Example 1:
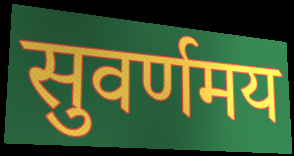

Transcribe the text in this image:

सुवर्णमय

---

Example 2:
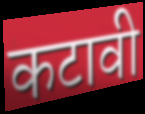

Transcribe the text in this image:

कटावी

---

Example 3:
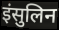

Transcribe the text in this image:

इंसुलिन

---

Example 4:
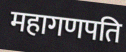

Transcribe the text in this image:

महागणपति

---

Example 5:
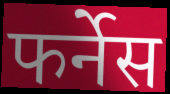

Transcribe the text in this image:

फर्नेस